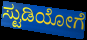
ಸ್ಟುಡಿಯೋಗೆ